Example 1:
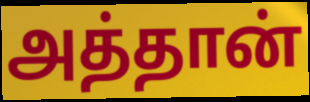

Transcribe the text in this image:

அத்தான்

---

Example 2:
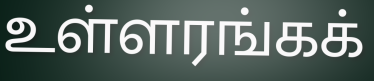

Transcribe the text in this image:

உள்ளரங்கக்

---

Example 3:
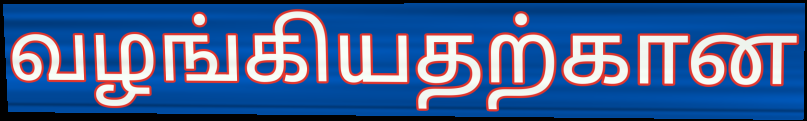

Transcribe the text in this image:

வழங்கியதற்கான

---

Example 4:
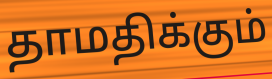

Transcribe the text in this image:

தாமதிக்கும்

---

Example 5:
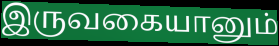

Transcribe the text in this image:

இருவகையானும்